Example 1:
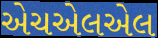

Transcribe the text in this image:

એચએલએલ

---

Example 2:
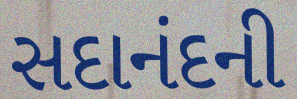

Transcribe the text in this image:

સદાનંદની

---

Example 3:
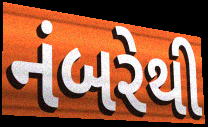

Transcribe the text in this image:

નંબરેથી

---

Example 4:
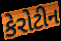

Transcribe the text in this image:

કેરોટીન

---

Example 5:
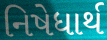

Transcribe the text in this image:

નિષેધાર્થ